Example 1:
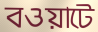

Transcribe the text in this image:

বওয়াটে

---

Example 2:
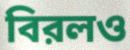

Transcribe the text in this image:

বিরলও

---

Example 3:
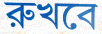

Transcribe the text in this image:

রুখবে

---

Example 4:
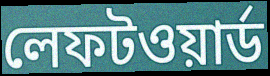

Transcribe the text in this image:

লেফটওয়ার্ড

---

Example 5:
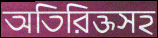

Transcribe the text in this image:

অতিরিক্তসহ